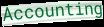
Accounting